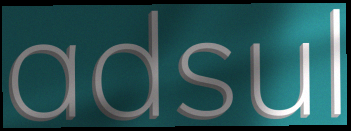
adsul